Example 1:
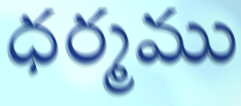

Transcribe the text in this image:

ధర్మము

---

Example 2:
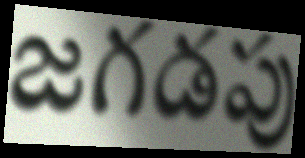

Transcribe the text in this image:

జగడపు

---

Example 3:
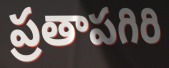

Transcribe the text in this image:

ప్రతాపగిరి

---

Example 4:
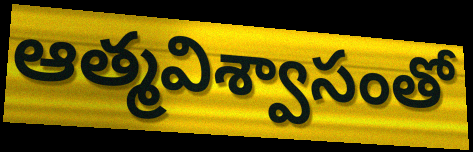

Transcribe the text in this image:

ఆత్మవిశ్వాసంతో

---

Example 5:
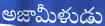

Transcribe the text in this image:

అజామీళుడు